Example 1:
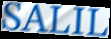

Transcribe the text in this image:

SALIL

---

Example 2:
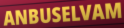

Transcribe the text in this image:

ANBUSELVAM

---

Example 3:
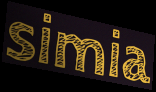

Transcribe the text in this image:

simia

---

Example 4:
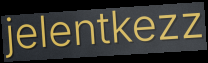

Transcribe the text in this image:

jelentkezz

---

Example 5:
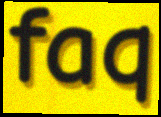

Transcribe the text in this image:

faq